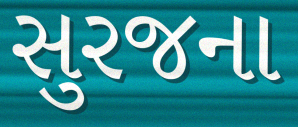
સુરજના